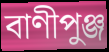
বাণীপুঞ্জ